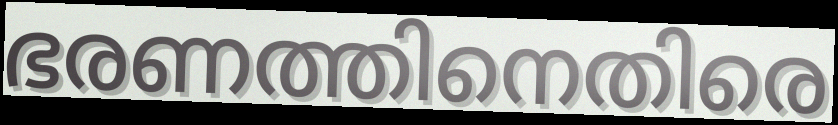
ഭരണത്തിനെതിരെ